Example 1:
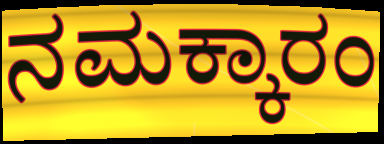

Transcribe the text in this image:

ನಮಕ್ಕಾರಂ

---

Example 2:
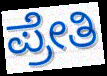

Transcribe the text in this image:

ಪ್ರೇತಿ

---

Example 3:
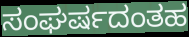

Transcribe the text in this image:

ಸಂಘರ್ಷದಂತಹ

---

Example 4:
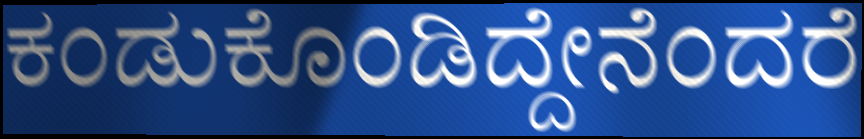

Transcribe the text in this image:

ಕಂಡುಕೊಂಡಿದ್ದೇನೆಂದರೆ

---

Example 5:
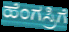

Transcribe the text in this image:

ಹೆಂಗಸ್ರಿಗೆ